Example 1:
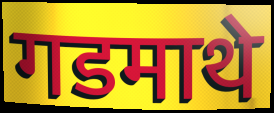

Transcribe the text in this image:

गडमाथे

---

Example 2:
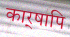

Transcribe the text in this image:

कार्षापि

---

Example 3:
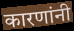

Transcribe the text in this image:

कारणांनी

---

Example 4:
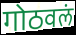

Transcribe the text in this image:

गोठवलं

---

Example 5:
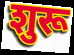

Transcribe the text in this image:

शुरू